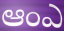
ఆంఎ